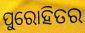
ପୁରୋହିତର